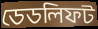
ডেডলিফট